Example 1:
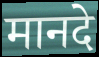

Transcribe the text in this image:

मानदे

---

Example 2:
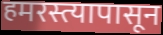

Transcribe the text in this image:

हमरस्त्यापासून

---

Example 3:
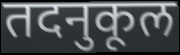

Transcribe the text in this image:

तदनुकूल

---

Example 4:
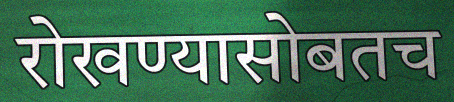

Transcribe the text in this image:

रोखण्यासोबतच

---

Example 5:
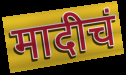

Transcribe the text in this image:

मादीचं